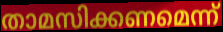
താമസിക്കണമെന്ന്